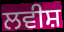
ਲਵੀਸ਼